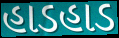
હાડહાડ